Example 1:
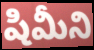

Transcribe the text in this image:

షిమీని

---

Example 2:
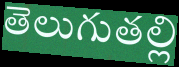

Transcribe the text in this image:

తెలుగుతల్లి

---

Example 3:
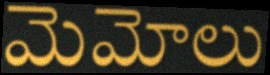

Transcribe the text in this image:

మెమోలు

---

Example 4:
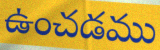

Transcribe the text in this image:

ఉంచడము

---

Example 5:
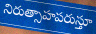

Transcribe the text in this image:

నిరుత్సాహపరుస్తూ